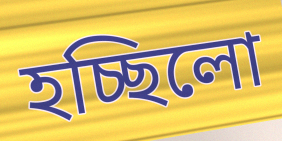
হচ্ছিলো